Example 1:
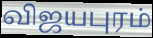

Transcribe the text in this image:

விஜயபுரம்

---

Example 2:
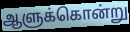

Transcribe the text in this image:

ஆளுக்கொன்று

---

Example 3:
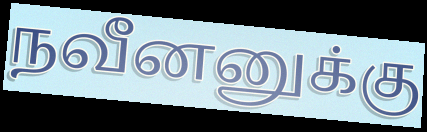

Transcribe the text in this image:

நவீனனுக்கு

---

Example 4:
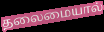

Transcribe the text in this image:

தலைமையால்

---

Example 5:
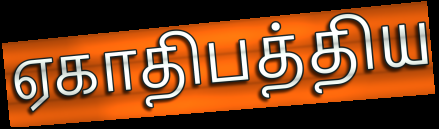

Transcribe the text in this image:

ஏகாதிபத்திய